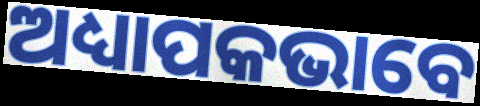
ଅଧ୍ୟାପକଭାବେ